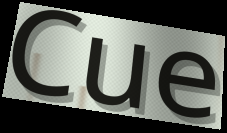
Cue